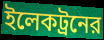
ইলেকট্রনের